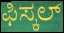
ಫಿಸ್ಕಲ್